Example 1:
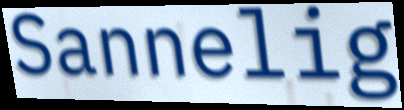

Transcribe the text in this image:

Sannelig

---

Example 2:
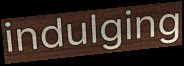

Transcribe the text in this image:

indulging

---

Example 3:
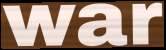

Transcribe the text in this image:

war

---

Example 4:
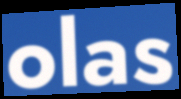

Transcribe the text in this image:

olas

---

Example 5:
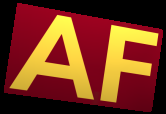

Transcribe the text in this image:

AF